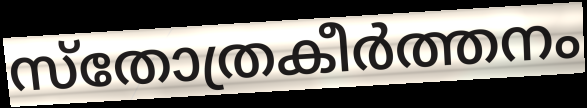
സ്തോത്രകീർത്തനം